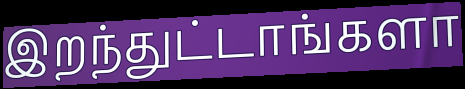
இறந்துட்டாங்களா